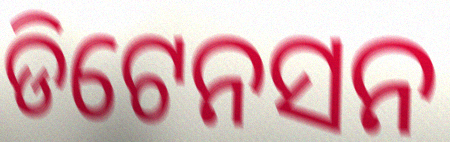
ଡିଟେନସନ